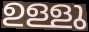
ഉള്ളു